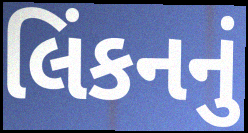
લિંકનનું